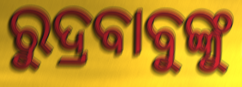
ରୁଦ୍ରବାବୁଙ୍କୁ